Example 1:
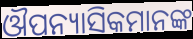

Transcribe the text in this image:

ଔପନ୍ୟାସିକମାନଙ୍କ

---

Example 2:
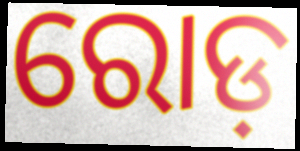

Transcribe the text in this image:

ରୋଡ଼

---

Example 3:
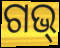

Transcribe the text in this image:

ଗଭ୍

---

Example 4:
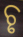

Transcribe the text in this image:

ଚୃ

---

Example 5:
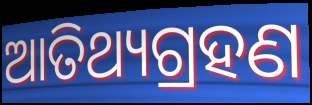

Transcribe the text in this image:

ଆତିଥ୍ୟଗ୍ରହଣ